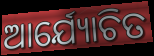
ଆର୍ଯ୍ୟୋଚିତ